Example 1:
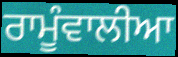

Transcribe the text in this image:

ਰਾਮੂੰਵਾਲੀਆ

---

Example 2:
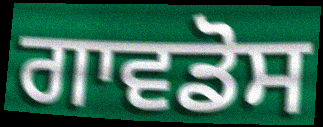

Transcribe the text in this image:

ਗਾਵਡੋਸ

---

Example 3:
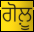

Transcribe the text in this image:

ਗੋਲ਼ੂ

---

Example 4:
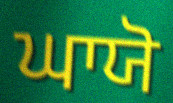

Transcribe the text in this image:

ਘਾਯੋ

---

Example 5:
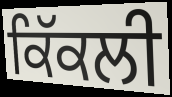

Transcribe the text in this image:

ਕਿੱਕਲੀ